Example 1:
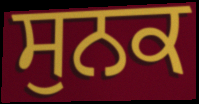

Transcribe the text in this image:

ਸੁਨਕ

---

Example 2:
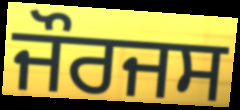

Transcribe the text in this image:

ਜੌਰਜਸ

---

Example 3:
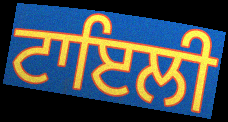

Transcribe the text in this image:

ਟਾਇਲੀ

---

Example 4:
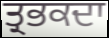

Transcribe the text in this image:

ਤ੍ਰਭਕਦਾ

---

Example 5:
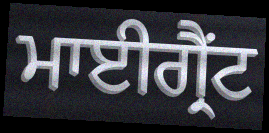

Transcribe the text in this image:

ਮਾਈਗ੍ਰੈਂਟ